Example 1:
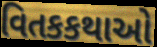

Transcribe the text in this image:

વિતકકથાઓ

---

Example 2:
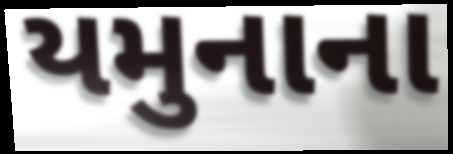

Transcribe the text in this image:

યમુનાના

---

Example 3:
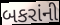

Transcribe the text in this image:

બકરાંની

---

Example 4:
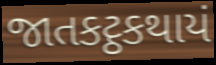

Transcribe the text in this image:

જાતકટ્ઠકથાયં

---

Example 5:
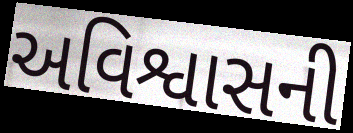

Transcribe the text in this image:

અવિશ્વાસની